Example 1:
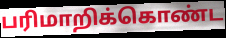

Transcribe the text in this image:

பரிமாறிக்கொண்ட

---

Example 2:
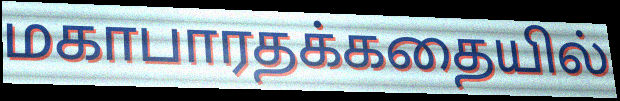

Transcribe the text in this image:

மகாபாரதக்கதையில்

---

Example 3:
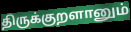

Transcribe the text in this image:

திருக்குறளானும்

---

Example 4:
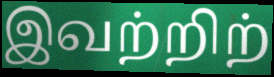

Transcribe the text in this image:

இவற்றிற்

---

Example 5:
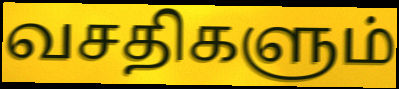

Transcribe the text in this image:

வசதிகளும்